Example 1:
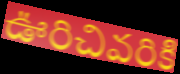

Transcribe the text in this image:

ఊరిచివరికి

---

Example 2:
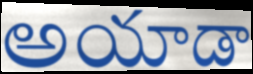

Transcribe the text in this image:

అయాడా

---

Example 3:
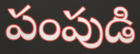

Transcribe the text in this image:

పంపుడి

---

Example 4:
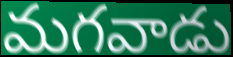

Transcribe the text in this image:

మగవాడు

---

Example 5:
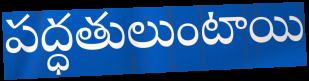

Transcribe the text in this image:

పద్ధతులుంటాయి